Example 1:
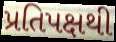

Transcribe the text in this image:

પ્રતિપક્ષથી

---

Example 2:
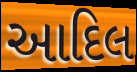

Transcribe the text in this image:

આદિલ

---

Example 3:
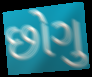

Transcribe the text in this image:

છોગુ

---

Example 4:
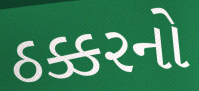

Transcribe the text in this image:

ઠક્કરનો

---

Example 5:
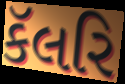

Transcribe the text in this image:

કૅલરિ